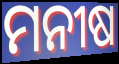
ମନୀଷ